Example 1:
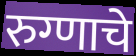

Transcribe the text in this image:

रुग्‍णाचे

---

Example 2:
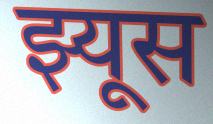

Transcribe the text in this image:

झ्यूस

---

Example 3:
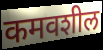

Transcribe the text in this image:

कमवशील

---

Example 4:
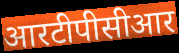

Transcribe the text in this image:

आरटीपीसीआर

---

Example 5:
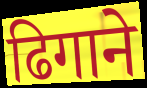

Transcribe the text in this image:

ढिगाने